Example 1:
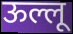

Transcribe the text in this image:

ऊल्लू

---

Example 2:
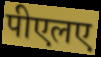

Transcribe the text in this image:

पीएलए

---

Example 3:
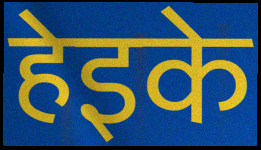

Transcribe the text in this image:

हेइके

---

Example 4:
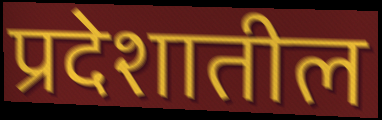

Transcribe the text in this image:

प्रदेशातील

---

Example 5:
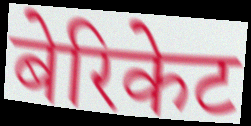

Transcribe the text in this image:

बेरिकेट